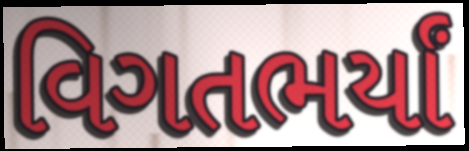
વિગતભર્યાં